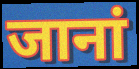
जानां